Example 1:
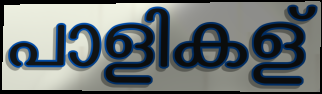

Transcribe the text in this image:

പാളികള്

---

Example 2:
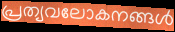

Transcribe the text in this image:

പ്രത്യവലോകനങ്ങൾ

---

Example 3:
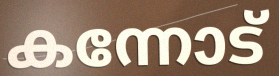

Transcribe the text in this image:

കന്നോട്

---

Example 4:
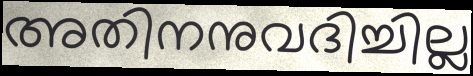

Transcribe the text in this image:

അതിനനുവദിച്ചില്ല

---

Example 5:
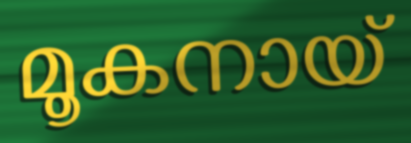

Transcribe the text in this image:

മൂകനായ്